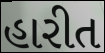
હારીત